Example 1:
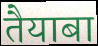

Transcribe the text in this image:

तैयाबा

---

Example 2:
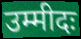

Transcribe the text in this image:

उम्मीदः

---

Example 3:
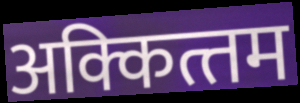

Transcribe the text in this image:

अक्‍कित्‍तम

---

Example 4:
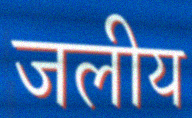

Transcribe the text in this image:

जलीय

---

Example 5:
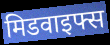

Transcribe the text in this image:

मिडवाइफ्स